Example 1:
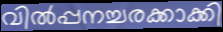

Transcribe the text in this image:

വിൽപ്പനച്ചരക്കാക്കി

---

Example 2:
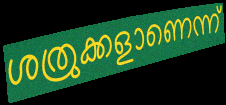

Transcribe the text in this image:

ശത്രുക്കളാണെന്ന്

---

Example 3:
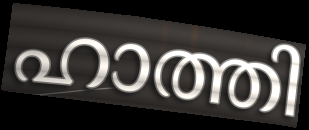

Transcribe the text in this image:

ഹാത്തി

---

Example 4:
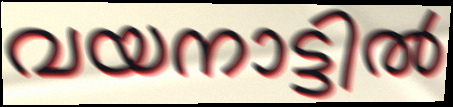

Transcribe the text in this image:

വയനാട്ടിൽ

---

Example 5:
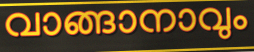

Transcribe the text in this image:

വാങ്ങാനാവും